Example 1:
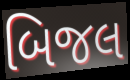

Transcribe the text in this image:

બિજલ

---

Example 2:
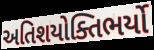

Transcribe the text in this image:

અતિશયોક્તિભર્યો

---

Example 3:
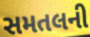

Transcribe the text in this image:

સમતલની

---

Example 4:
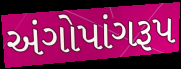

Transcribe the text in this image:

અંગોપાંગરૂપ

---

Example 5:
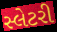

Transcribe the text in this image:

સ્લેટરી